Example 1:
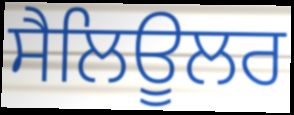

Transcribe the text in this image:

ਸੈਲਿਊਲਰ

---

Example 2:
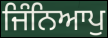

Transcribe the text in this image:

ਜਿੰਨਿਆਪੁ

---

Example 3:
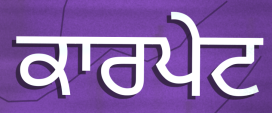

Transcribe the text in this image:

ਕਾਰਪੇਟ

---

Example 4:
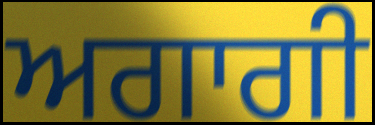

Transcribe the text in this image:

ਅਗਾਗੀ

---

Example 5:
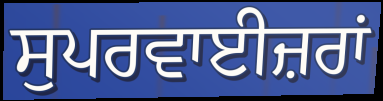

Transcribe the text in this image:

ਸੁਪਰਵਾਈਜ਼ਰਾਂ